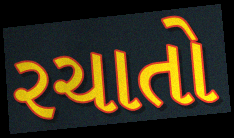
રચાતો